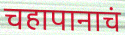
चहापानाचं